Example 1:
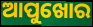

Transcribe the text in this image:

ଆପୁଖୋର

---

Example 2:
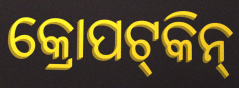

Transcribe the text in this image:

କ୍ରୋପଟ୍‍କିନ୍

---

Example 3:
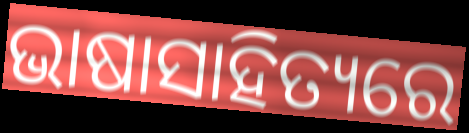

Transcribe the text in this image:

ଭାଷାସାହିତ୍ୟରେ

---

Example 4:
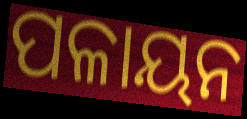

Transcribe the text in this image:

ପଳାୟନ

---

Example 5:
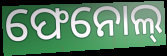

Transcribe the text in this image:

ଫେନୋଲ୍